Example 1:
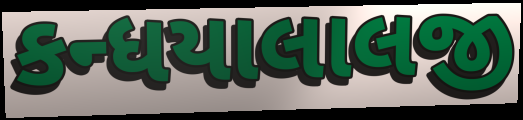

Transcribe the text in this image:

કન્ધયાલાલજી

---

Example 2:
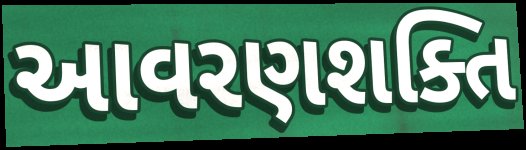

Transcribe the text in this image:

આવરણશક્તિ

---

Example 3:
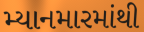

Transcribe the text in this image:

મ્યાનમારમાંથી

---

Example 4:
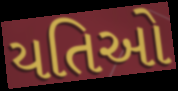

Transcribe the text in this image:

યતિઓ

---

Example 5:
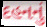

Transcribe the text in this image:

દહનનું